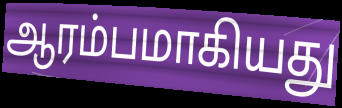
ஆரம்பமாகியது